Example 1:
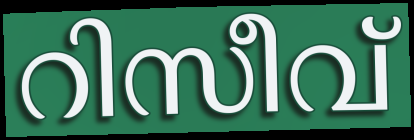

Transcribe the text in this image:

റിസീവ്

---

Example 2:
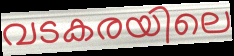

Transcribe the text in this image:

വടകരയിലെ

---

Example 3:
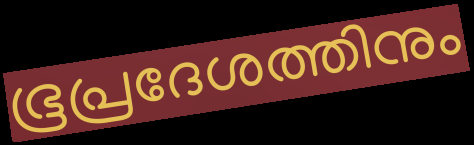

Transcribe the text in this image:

ഭൂപ്രദേശത്തിനും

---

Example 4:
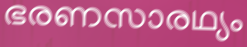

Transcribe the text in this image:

ഭരണസാരഥ്യം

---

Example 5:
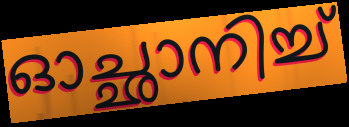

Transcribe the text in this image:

ഓച്ഛാനിച്ച്